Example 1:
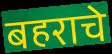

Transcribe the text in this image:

बहराचे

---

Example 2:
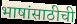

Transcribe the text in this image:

भाषांसाठीची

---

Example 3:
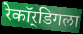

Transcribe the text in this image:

रेकॉर्डिगला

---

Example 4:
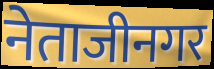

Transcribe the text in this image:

नेताजीनगर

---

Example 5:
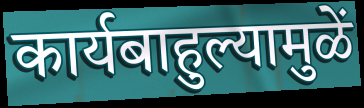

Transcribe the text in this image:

कार्यबाहुल्यामुळें